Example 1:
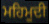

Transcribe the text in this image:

ਮਹਿਮੂਦੀ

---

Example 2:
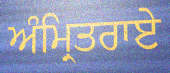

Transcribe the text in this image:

ਅੰਮ੍ਰਿਤਰਾਏ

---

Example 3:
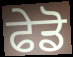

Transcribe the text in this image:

ਫੇਡੋ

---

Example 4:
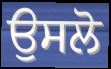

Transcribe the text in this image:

ਉਸਲੋ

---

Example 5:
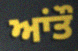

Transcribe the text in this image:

ਆਂਤੌ